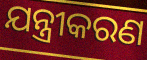
ଯନ୍ତ୍ରୀକରଣ